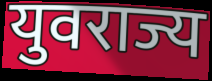
युवराज्य